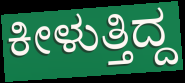
ಕೀಳುತ್ತಿದ್ದ